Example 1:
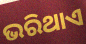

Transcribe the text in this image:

ଭରିଥାଏ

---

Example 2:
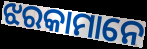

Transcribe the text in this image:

ଝରକାମାନେ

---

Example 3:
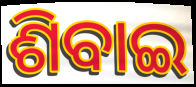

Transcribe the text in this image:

ଶିବାଇ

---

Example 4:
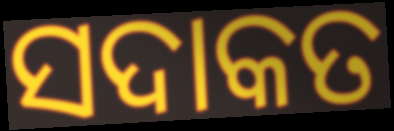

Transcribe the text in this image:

ସଦାକତ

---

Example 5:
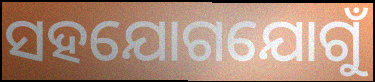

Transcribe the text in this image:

ସହଯୋଗଯୋଗୁଁ